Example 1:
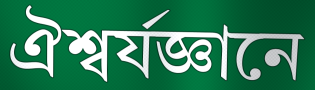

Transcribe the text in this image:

ঐশ্বর্যজ্ঞানে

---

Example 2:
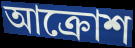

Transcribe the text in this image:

আক্রোশ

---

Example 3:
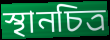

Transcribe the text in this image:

স্থানচিত্র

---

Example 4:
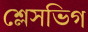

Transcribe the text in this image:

শ্লেসভিগ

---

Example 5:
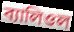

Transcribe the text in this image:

ব্যালিওল